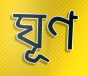
ঘূণ